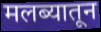
मलब्यातून